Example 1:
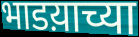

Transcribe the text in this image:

भाडय़ाच्या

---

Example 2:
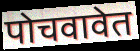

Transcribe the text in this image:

पोचवावेत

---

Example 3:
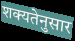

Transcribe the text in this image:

शक्यतेनुसार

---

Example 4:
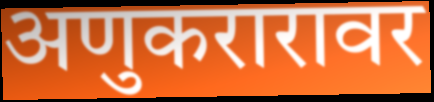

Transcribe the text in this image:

अणुकरारावर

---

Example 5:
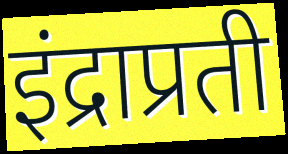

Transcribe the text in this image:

इंद्राप्रती